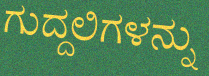
ಗುದ್ದಲಿಗಳನ್ನು